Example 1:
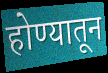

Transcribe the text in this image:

होण्यातून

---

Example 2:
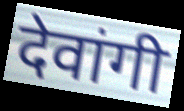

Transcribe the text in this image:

देवांगी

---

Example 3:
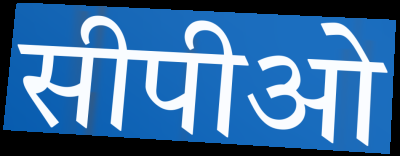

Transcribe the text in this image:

सीपीओ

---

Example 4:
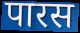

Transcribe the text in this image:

पारस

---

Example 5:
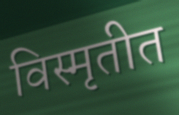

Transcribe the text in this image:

विस्मृतीत